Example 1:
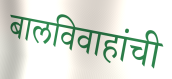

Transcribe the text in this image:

बालविवाहांची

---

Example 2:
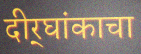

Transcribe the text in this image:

दीर्घांकाचा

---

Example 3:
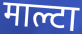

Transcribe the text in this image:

माल्टा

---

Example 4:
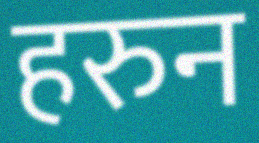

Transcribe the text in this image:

हरुन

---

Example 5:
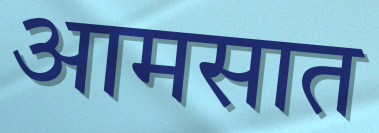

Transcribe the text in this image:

आमसात